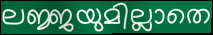
ലജ്ജയുമില്ലാതെ